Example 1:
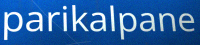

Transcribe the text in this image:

parikalpane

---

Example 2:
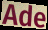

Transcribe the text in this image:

Ade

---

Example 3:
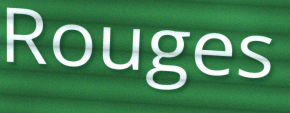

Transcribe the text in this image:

Rouges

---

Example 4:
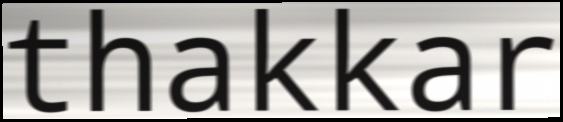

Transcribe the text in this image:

thakkar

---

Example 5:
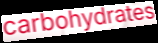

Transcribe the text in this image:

carbohydrates